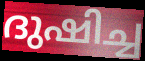
ദുഷിച്ച